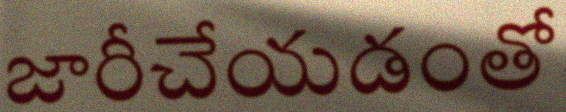
జారీచేయడంతో